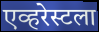
एव्हरेस्टला